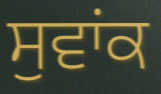
ਸੁਵਾਂਕ